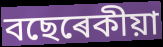
বছেৰেকীয়া